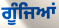
ਗੂੰਜਿਆਂ